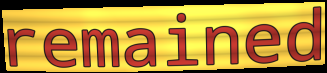
remained